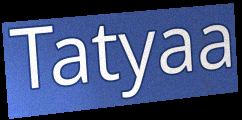
Tatyaa